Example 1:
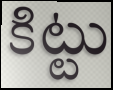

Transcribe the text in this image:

కిట్టు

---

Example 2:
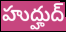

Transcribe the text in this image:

హుద్హుద్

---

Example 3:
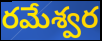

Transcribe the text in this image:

రమేశ్వర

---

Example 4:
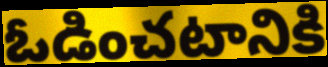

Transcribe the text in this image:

ఓడించటానికి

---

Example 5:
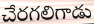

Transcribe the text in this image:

చేరగలిగాడు